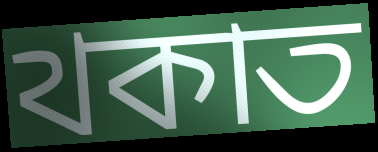
থকাত